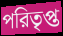
পরিতৃপ্ত